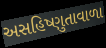
અસહિષ્ણુતાવાળા